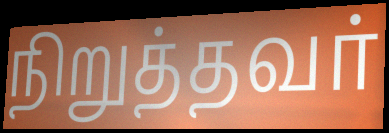
நிறுத்தவர்